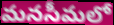
మనసీమలో